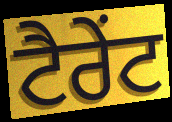
ਟੈਰੇਂਟ